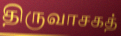
திருவாசகத்